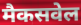
मैकसवेल